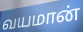
வயமான்